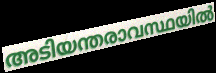
അടിയന്തരാവസ്ഥയിൽ